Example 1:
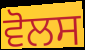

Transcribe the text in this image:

ਵੋਲਸ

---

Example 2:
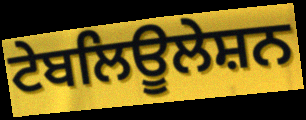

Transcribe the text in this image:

ਟੇਬਲਿਊਲੇਸ਼ਨ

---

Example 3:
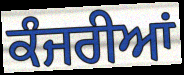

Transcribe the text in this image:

ਕੰਜਰੀਆਂ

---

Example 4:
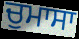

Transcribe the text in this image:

ਚੁਮਾਸਾ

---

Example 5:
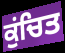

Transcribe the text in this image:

ਕੁਂਚਿਤ